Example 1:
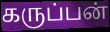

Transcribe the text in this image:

கருப்பன்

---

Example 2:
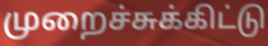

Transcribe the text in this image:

முறைச்சுக்கிட்டு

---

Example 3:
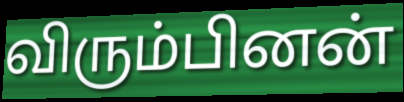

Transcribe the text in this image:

விரும்பினன்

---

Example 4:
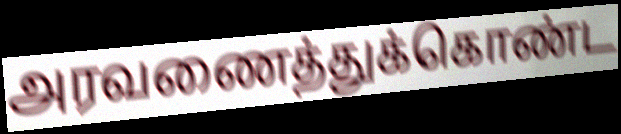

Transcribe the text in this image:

அரவணைத்துக்கொண்ட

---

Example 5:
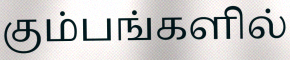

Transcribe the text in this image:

கும்பங்களில்